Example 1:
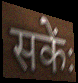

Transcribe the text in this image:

सकेंः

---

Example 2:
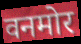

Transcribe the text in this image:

वनमोर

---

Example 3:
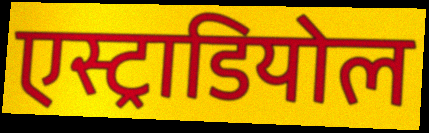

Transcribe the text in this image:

एस्ट्राडियोल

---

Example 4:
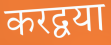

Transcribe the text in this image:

करद्वया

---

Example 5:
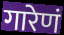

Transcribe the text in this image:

गारेणं